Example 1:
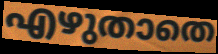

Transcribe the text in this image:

എഴുതാതെ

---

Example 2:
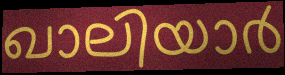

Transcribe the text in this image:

ഖാലിയാർ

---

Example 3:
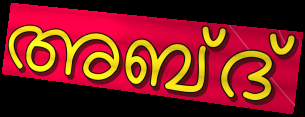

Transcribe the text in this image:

അബ്ദ്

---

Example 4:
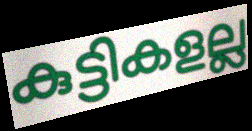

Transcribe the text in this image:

കുട്ടികളല്ല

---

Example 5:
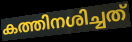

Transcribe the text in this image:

കത്തിനശിച്ചത്